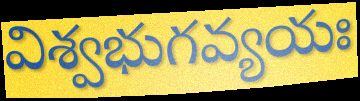
విశ్వభుగవ్యయః